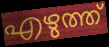
എഴുത്ത്